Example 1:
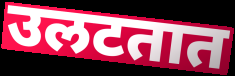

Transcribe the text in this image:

उलटतात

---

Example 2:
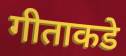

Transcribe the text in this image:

गीताकडे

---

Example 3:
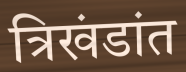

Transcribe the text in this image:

त्रिखंडांत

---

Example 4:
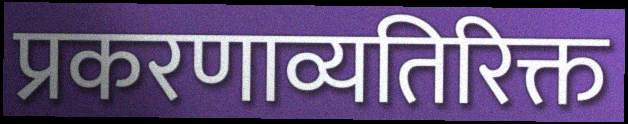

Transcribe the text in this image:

प्रकरणाव्यतिरिक्त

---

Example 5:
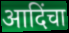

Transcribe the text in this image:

आदिंचा